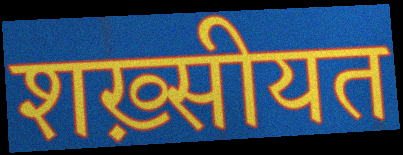
शख़्सीयत